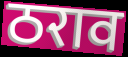
ठराव